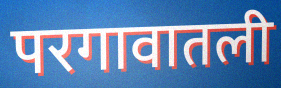
परगावातली